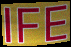
IFE